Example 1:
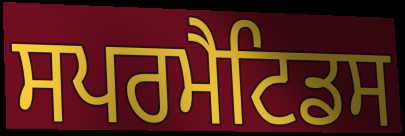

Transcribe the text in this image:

ਸਪਰਮੈਟਿਡਸ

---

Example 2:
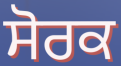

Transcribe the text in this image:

ਸੋਰਕ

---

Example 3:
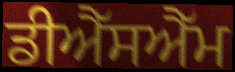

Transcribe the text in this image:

ਡੀਐੱਸਐੱਮ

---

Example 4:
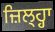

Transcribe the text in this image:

ਜ਼ਿਲ੍ਹ੍ਹਾ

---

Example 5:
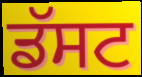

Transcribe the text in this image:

ਡੱਸਟ